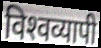
विश्‍वव्यापी